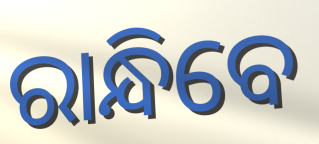
ରାନ୍ଧିବେ